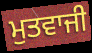
ਮੁਤਵਾਜੀ